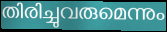
തിരിച്ചുവരുമെന്നും